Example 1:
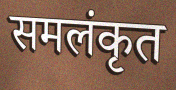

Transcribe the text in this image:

समलंकृत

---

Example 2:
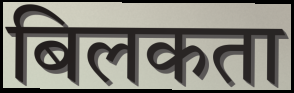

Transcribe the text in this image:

बिलकता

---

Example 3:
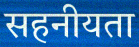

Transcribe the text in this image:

सहनीयता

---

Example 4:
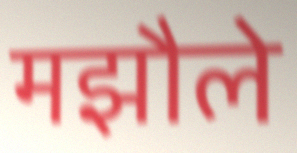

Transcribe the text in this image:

मझौले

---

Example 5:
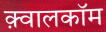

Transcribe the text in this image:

क़्वालकॉम